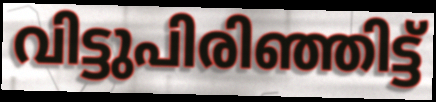
വിട്ടുപിരിഞ്ഞിട്ട്